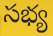
సభ్య